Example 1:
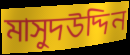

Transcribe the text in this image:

মাসুদউদ্দিন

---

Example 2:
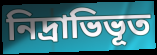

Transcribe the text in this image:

নিদ্রাভিভূত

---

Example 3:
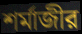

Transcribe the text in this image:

শর্মাজীর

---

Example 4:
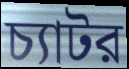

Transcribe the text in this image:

চ্যাটর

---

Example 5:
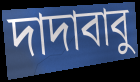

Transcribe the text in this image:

দাদাবাবু